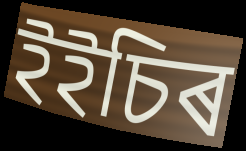
ইইচিৰ